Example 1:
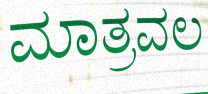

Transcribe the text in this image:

ಮಾತ್ರವಲ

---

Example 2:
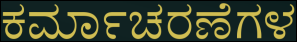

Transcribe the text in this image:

ಕರ್ಮಾಚರಣೆಗಳ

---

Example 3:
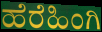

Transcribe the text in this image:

ಹೆರೆಹಿಂಗಿ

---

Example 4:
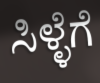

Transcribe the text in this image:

ಸಿಳ್ಳೆಗೆ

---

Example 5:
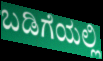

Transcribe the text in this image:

ಬಡಿಗೆಯಲ್ಲಿ